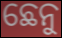
ଛେନୁ